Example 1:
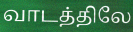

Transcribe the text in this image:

வாடத்திலே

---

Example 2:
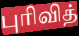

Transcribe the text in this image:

புரிவித்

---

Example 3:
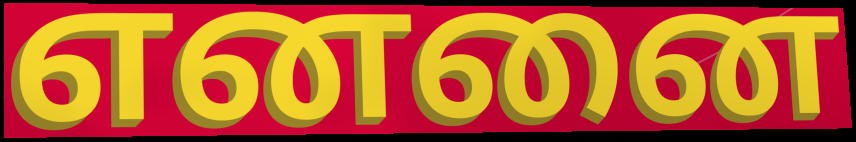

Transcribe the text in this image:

எனனை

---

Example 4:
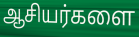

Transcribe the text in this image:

ஆசியர்களை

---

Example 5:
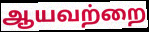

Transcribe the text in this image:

ஆயவற்றை